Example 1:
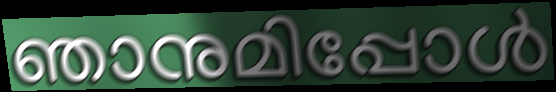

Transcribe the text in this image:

ഞാനുമിപ്പോൾ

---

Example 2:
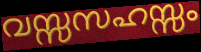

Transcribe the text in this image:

വസ്സസഹസ്സം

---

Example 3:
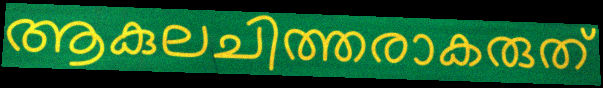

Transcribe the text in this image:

ആകുലചിത്തരാകരുത്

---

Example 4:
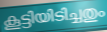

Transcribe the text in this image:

കൂട്ടിയിടിച്ചതും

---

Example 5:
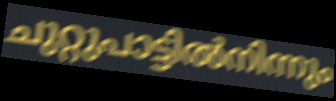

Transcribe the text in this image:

ചുറ്റുപാട്ടിൽനിന്നും